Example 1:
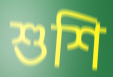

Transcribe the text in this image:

শুশি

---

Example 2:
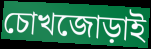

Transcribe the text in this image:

চোখজোড়াই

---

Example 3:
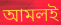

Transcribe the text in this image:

আমলই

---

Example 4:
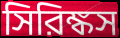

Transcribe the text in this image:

সিরিঙ্কস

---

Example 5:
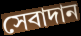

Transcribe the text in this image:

সেবাদান